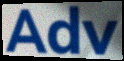
Adv